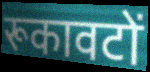
रूकावटों